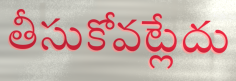
తీసుకోవట్లేదు